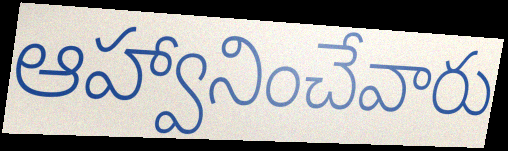
ఆహ్వానించేవారు